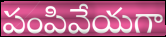
పంపివేయగా